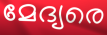
മേദ്യരെ